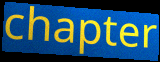
chapter